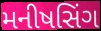
મનીષસિંગ